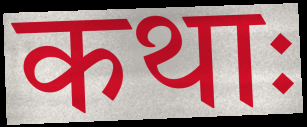
कथाः